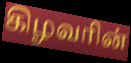
கிழவரின்